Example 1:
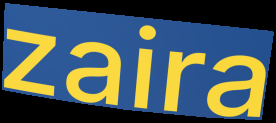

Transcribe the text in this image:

zaira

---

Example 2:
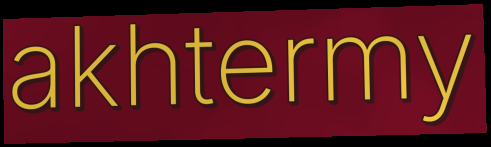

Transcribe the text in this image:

akhtermy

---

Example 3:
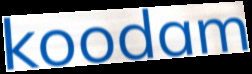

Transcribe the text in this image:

koodam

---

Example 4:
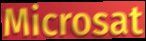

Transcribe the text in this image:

Microsat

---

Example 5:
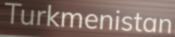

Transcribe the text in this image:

Turkmenistan